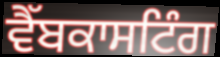
ਵੈੱਬਕਾਸਟਿੰਗ